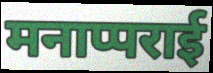
मनाप्पराई